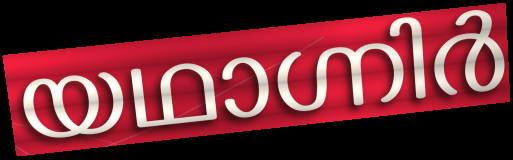
യഥാഗ്നിർ